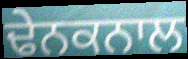
ਢੇਨਕਨਾਲ